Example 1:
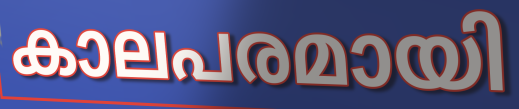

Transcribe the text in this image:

കാലപരമായി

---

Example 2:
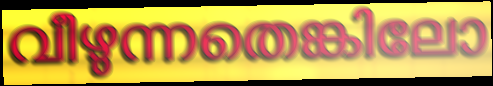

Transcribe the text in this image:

വീഴുന്നതെങ്കിലോ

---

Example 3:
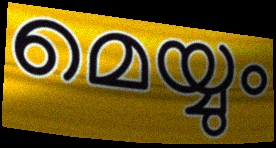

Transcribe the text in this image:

മെയ്യും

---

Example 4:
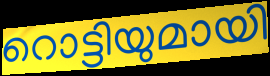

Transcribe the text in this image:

റൊട്ടിയുമായി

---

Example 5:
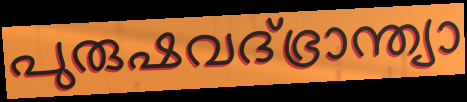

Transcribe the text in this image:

പുരുഷവദ്ഭ്രാന്ത്യാ